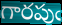
గారపుఁ